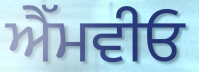
ਐੱਮਵੀਓ